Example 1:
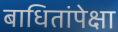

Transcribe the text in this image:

बाधितांपेक्षा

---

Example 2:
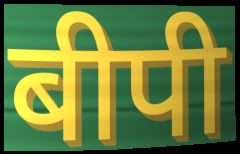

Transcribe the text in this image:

बीपी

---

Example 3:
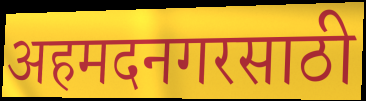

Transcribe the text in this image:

अहमदनगरसाठी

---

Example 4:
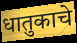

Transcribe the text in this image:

धातुकाचे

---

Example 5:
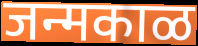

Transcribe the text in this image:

जन्मकाळ